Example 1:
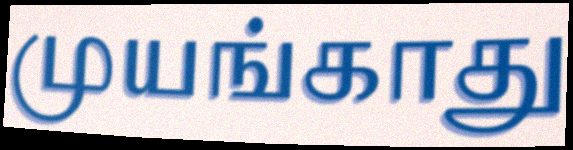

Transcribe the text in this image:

முயங்காது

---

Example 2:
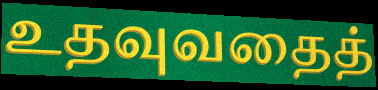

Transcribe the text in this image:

உதவுவதைத்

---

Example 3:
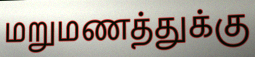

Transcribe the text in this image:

மறுமணத்துக்கு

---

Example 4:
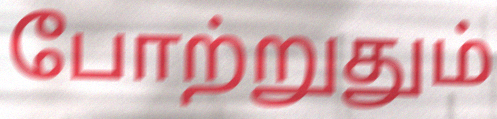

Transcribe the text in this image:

போற்றுதும்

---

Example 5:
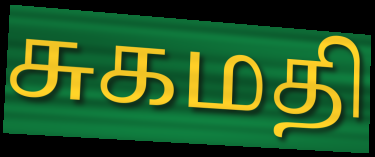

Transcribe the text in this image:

சுகமதி